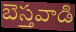
బెస్తవాడి